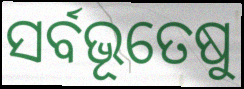
ସର୍ବଭୂତେଷୁ